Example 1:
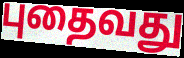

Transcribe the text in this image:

புதைவது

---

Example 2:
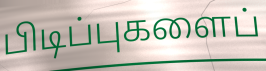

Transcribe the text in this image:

பிடிப்புகளைப்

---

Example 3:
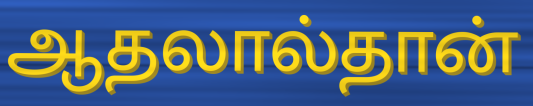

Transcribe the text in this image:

ஆதலால்தான்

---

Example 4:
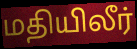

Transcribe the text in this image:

மதியிலீர்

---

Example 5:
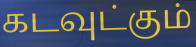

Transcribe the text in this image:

கடவுட்கும்